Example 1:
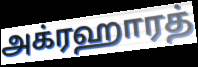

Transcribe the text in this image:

அக்ரஹாரத்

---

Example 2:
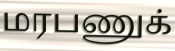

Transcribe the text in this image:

மரபணுக்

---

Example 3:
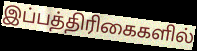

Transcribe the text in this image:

இப்பத்திரிகைகளில்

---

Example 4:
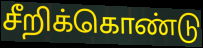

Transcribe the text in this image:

சீறிக்கொண்டு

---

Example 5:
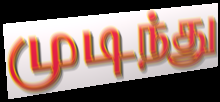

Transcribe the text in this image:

முடிந்து